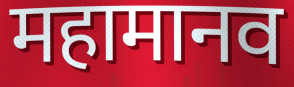
महामानव